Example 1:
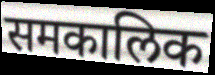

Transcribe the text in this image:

समकालिक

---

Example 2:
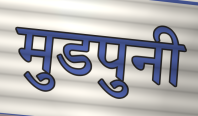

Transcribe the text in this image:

मुडपुनी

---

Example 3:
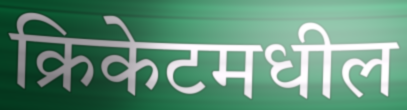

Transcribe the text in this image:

क्रिकेटमधील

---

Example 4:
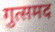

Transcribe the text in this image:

गुत्समद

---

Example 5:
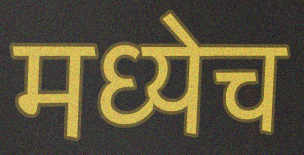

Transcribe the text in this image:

मध्‍येच